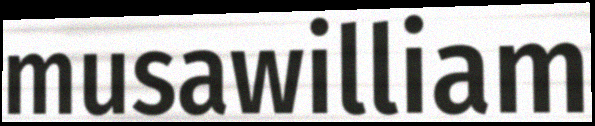
musawilliam